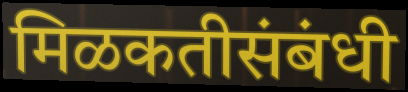
मिळकतीसंबंधी